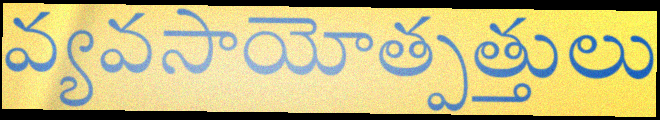
వ్యవసాయోత్పత్తులు